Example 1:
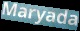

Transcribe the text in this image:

Maryada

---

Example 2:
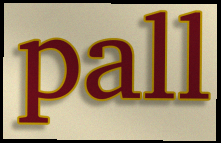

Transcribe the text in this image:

pall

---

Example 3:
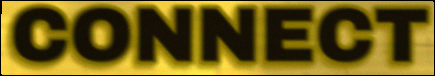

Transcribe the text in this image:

CONNECT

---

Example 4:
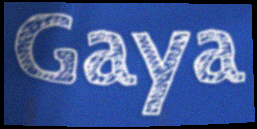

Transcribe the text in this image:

Gaya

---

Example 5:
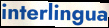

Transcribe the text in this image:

interlingua